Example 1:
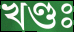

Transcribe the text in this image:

খণ্ডঃ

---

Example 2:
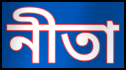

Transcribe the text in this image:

নীতা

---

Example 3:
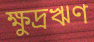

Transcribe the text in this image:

ক্ষুদ্রঋণ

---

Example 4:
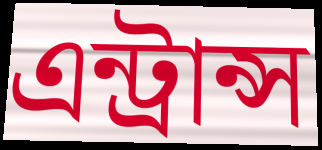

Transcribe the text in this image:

এন্ট্রান্স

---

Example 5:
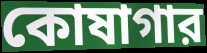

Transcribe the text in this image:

কোষাগার